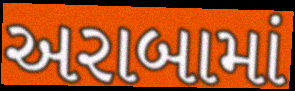
અરાબામાં